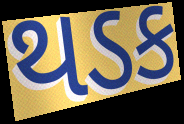
થડક